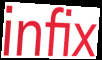
infix